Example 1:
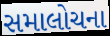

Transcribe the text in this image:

સમાલોચના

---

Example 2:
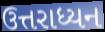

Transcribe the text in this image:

ઉત્તરાધ્યન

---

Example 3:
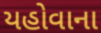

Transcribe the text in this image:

યહોવાના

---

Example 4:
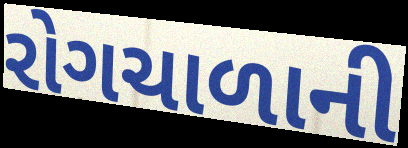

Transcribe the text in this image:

રોગચાળાની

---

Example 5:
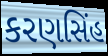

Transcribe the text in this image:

કરણસિંહ